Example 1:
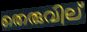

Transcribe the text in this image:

തെരുവില്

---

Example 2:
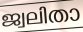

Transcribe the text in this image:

ജ്വലിതാ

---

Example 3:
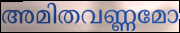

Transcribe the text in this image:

അമിതവണ്ണമോ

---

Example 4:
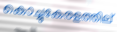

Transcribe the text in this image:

കൊച്ചുകേരളത്തില്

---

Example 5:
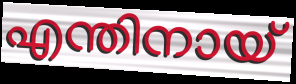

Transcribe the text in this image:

എന്തിനായ്